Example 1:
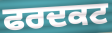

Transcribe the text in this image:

ਫਰਦਕਟ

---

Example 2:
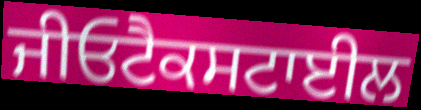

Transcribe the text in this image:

ਜੀਓਟੈਕਸਟਾਈਲ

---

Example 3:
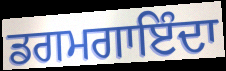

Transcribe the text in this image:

ਡਗਮਗਾਇੰਦਾ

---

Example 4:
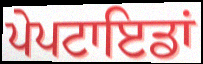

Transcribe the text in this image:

ਪੇਪਟਾਇਡਾਂ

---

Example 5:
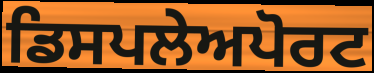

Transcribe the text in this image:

ਡਿਸਪਲੇਅਪੋਰਟ